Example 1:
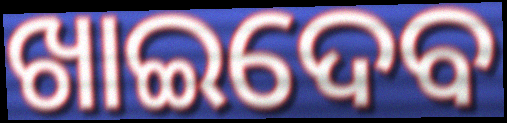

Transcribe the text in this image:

ଖାଇଦେବ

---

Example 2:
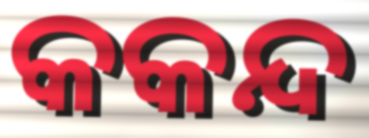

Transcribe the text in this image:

କକନ୍ଦ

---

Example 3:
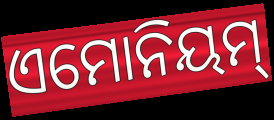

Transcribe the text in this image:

ଏମୋନିୟମ୍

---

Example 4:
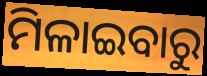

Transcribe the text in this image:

ମିଳାଇବାରୁ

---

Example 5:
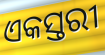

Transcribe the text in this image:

ଏକସ୍ତରୀ